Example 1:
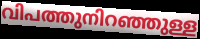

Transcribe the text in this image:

വിപത്തുനിറഞ്ഞുള്ള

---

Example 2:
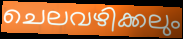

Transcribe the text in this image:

ചെലവഴിക്കലും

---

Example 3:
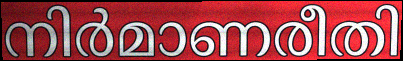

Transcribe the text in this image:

നിർമാണരീതി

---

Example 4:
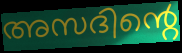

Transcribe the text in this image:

അസദിന്റെ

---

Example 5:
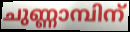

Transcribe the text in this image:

ചുണ്ണാമ്പിന്